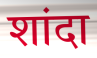
शांदा